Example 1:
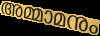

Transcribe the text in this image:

അമ്മാമനും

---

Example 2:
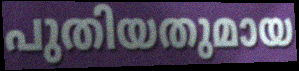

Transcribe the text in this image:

പുതിയതുമായ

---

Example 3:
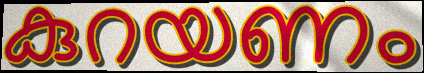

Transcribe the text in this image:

കുറയണം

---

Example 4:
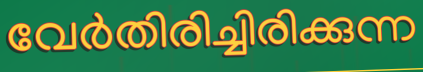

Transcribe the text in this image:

വേർതിരിച്ചിരിക്കുന്ന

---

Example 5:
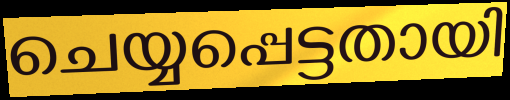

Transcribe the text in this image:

ചെയ്യപ്പെട്ടതായി